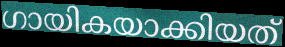
ഗായികയാക്കിയത്